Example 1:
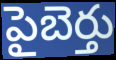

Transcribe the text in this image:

పైబెర్తు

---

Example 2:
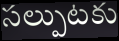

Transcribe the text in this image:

సల్పుటకు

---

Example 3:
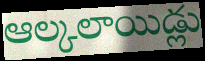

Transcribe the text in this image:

ఆల్కలాయిడ్లు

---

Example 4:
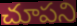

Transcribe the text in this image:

చూపని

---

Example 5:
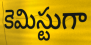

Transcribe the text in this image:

కెమిస్టుగా